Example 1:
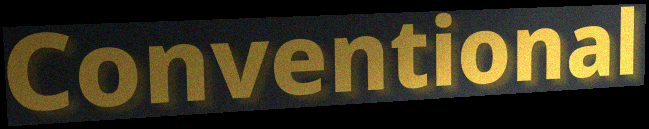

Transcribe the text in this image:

Conventional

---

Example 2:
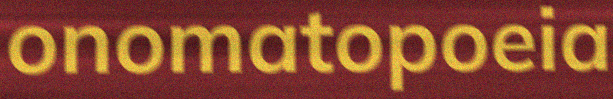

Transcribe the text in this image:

onomatopoeia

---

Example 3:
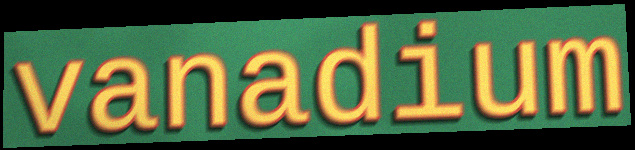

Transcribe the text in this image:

vanadium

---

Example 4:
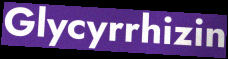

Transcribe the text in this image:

Glycyrrhizin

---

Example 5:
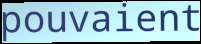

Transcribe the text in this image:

pouvaient